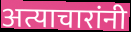
अत्याचारांनी